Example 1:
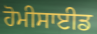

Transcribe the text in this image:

ਹੋਮੀਸਾਈਡ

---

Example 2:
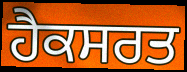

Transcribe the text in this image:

ਹੈਕਸਰਤ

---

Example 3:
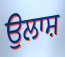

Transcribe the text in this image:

ਉਲਾਸ਼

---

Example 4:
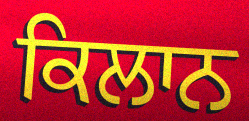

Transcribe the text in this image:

ਕਿਲਾਨ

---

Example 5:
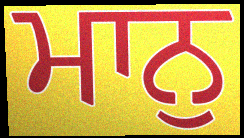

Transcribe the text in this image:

ਮਾਨੁ